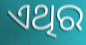
ଏଥିର